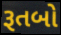
રૂતબો